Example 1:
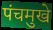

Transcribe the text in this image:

पंचमुखे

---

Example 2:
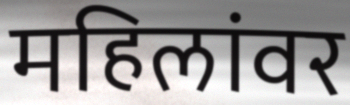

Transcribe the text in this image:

महिलांवर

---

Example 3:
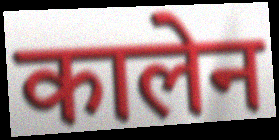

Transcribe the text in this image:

कालेन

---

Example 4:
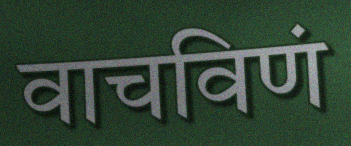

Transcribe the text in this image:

वाचविणं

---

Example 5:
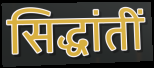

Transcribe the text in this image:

सिद्धांतीं